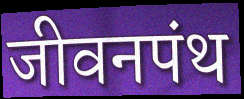
जीवनपंथ